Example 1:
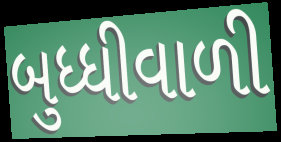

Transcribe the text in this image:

બુધ્ધીવાળી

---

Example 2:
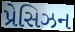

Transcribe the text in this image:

પ્રેસિઝન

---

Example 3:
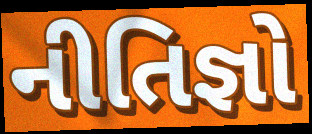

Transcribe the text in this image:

નીતિજ્ઞો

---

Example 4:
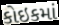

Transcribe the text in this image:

કોઇકમાં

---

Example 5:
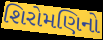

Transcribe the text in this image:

શિરોમણિનો